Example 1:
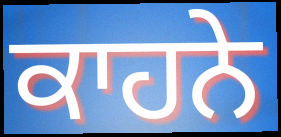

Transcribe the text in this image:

ਕਾਹਨੇ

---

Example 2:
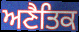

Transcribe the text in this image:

ਅਣੈਤਿਕ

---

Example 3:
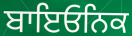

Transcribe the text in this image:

ਬਾਇਓਨਿਕ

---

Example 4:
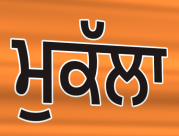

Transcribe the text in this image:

ਮੁਕੱਲਾ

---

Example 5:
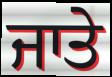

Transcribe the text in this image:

ਜਾਤੇ